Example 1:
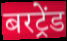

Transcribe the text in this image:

बरट्रेंड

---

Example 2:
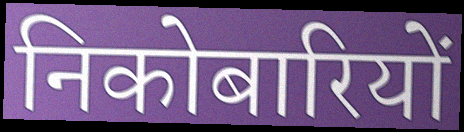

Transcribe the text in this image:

निकोबारियों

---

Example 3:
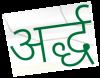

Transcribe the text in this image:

अर्द्ध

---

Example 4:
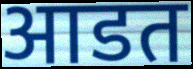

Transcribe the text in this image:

आडत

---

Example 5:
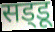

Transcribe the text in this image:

सड्‌डू